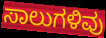
ಸಾಲುಗಳಿವು